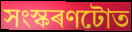
সংস্কৰণটোত